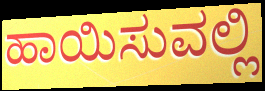
ಹಾಯಿಸುವಲ್ಲಿ